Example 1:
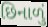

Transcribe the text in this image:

છિનાળું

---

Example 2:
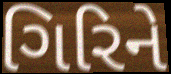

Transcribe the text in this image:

ગિરિને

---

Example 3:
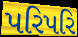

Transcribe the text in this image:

પરિપરિ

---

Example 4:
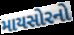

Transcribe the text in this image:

માયસોરનો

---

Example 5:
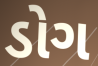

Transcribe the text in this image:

ડોગ